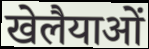
खेलैयाओं